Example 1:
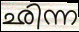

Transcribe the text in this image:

ഛിന്ന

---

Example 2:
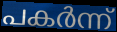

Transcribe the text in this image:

പകർന്ന്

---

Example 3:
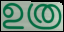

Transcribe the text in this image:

ഉത്ര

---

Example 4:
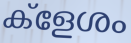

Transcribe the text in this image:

ക്ളേശം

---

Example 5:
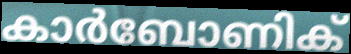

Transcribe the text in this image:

കാർബോണിക്